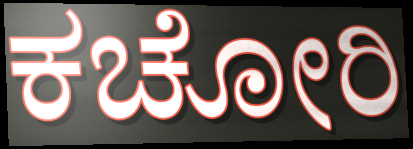
ಕಚೋರಿ